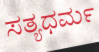
ಸತ್ಯಧರ್ಮ